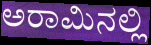
ಅರಾಮಿನಲ್ಲಿ